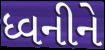
ધ્વનીને